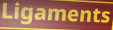
Ligaments